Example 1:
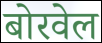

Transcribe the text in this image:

बोरवेल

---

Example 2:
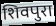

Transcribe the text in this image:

शिवपुरा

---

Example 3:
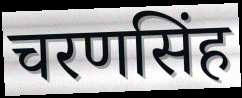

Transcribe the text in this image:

चरणसिंह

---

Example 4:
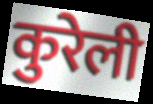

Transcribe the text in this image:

कुरेली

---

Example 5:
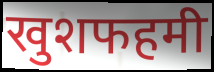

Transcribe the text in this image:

खुशफहमी